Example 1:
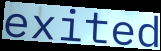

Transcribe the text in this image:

exited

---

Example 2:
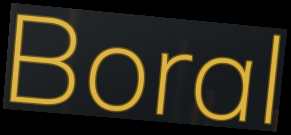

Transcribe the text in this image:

Boral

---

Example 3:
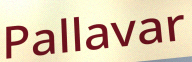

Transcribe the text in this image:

Pallavar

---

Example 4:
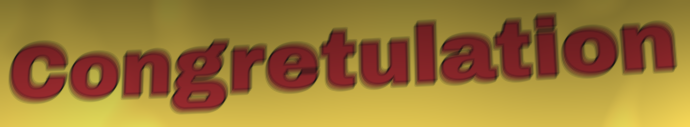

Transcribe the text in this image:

Congretulation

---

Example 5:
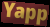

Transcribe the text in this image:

Yapp